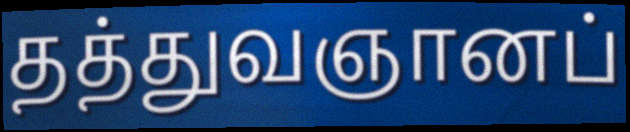
தத்துவஞானப்